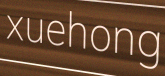
xuehong